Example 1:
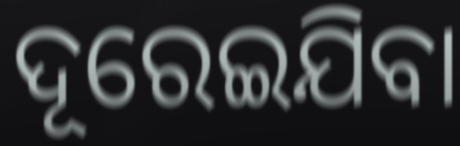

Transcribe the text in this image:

ଦୂରେଇଯିବା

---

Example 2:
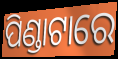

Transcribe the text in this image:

ପିଣ୍ଡାଟାରେ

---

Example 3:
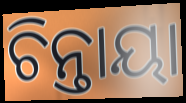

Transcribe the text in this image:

ଚିନ୍ତାୟା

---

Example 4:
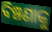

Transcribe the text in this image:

ବିଞ୍ଚଣାକୁ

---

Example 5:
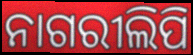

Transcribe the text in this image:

ନାଗରୀଲିପି